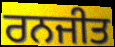
ਰਨਜੀਤ